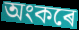
অংকৰে